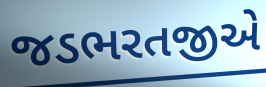
જડભરતજીએ